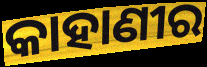
କାହାଣୀର